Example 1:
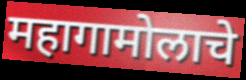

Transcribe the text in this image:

महागामोलाचे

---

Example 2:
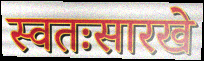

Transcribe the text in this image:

स्वतःसारखे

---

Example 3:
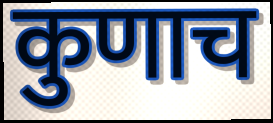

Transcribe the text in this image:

कुणाच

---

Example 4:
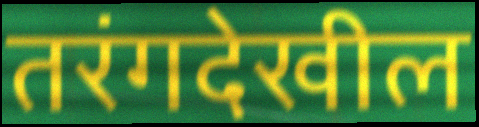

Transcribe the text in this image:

तरंगदेखील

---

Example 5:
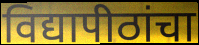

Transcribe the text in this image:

विद्यापीठांचा